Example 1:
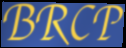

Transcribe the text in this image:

BRCP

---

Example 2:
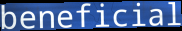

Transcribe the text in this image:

beneficial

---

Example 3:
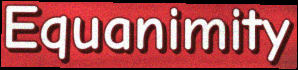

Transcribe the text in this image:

Equanimity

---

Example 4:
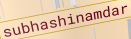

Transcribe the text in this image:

subhashinamdar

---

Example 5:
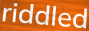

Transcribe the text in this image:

riddled